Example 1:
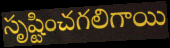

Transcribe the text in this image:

సృష్టించగలిగాయి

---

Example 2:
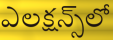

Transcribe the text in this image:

ఎలక్షన్స్‌లో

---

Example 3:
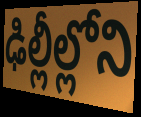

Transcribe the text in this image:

ఢిల్లీల్లోని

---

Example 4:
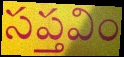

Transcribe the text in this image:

సప్తవిం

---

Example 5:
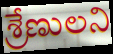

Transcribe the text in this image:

శ్రేణులని